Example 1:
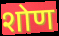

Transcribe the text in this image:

शोण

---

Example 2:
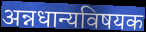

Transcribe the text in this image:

अन्नधान्यविषयक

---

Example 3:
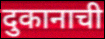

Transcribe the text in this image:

दुकानाची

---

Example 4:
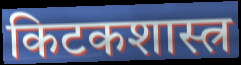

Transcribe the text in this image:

किटकशास्‍त्र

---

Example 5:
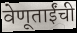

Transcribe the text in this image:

वेणूताईंची